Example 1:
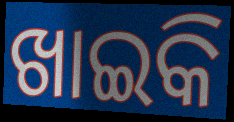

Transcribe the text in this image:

ଖାଇକି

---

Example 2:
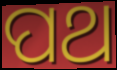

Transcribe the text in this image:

ପଥ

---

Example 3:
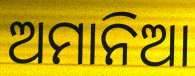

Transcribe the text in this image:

ଅମାନିଆ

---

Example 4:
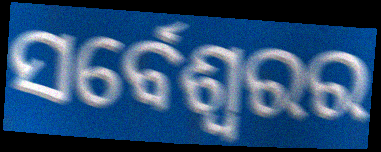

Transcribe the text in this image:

ସର୍ବେଶ୍ୱରର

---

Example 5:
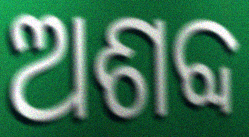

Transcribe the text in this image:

ଅଶବ୍ଦ